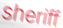
sheriff